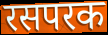
रसपरक